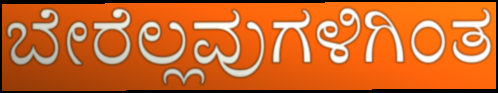
ಬೇರೆಲ್ಲವುಗಳಿಗಿಂತ